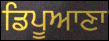
ਡਿਪੂਆਣਾ